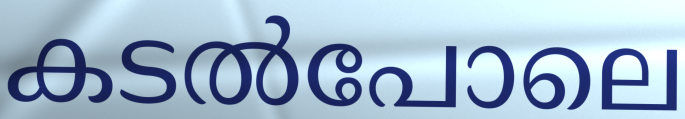
കടൽപോലെ